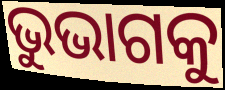
ଭୁଭାଗକୁ